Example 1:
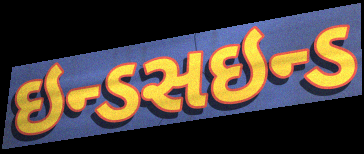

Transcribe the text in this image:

ઇન્ડસઇન્ડ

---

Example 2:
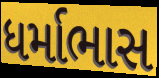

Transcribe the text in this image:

ધર્માભાસ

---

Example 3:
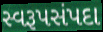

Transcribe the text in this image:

સ્વરૂપસંપદા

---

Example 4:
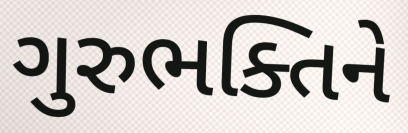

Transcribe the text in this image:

ગુરુભક્તિને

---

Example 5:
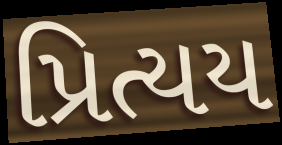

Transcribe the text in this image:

પ્રિત્યય